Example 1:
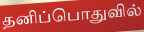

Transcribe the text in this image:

தனிப்பொதுவில்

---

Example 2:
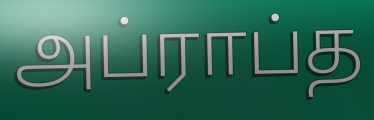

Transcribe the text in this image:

அப்ராப்த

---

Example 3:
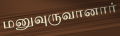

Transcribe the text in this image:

மனுவுருவானார்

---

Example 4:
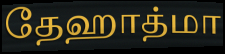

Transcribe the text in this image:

தேஹாத்மா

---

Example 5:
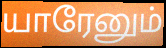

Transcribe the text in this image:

யாரேனும்